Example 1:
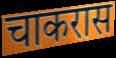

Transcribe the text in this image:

चाकरास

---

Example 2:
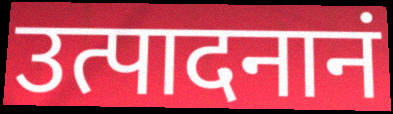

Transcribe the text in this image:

उत्पादनानं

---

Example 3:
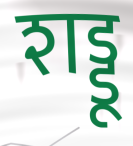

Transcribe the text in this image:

शड्डू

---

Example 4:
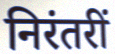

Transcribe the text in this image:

निरंतरीं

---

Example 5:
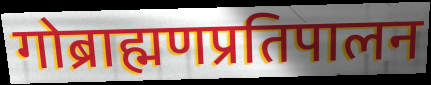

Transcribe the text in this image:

गोब्राह्मणप्रतिपालन